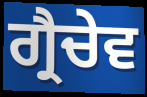
ਗ੍ਰੈਚੇਵ